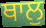
ਥਾਲੁ